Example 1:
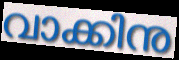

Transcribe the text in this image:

വാക്കിനു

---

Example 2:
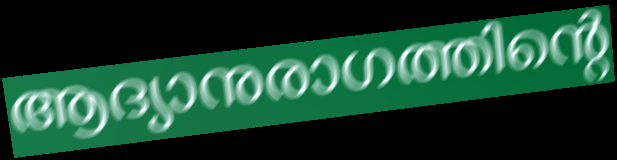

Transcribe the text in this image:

ആദ്യാനുരാഗത്തിന്റെ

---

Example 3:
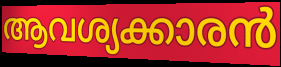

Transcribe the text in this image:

ആവശ്യക്കാരൻ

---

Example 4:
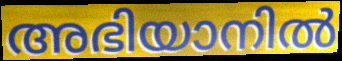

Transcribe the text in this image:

അഭിയാനിൽ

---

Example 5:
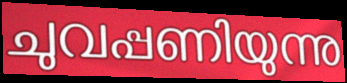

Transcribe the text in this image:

ചുവപ്പണിയുന്നു